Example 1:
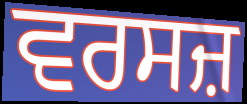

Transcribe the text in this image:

ਵਰਸਜ਼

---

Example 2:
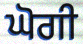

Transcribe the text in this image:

ਘੋਗੀ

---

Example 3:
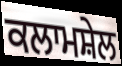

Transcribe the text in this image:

ਕਲਾਮਸ਼ੇਲ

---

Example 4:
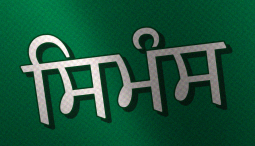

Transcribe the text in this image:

ਸਿਮੰਸ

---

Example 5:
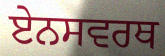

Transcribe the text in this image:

ਏਨਸਵਰਥ